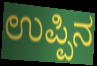
ಉಪ್ಪಿನ